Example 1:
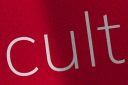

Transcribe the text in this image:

cult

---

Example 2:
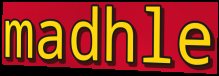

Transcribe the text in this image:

madhle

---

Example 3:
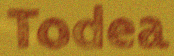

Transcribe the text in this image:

Todea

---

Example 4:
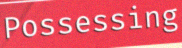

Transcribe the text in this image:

Possessing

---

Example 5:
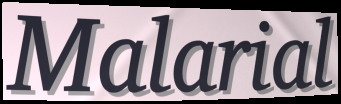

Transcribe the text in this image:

Malarial